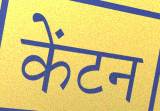
केंटन